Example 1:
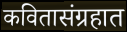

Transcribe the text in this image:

कवितासंग्रहात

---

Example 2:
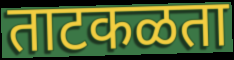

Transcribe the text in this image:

ताटकळता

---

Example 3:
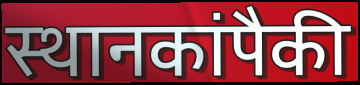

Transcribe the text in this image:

स्थानकांपैकी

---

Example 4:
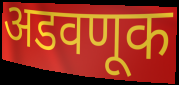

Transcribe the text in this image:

अडवणूक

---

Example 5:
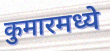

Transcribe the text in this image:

कुमारमध्ये